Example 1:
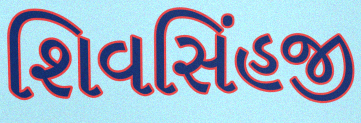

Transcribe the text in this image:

શિવસિંહજી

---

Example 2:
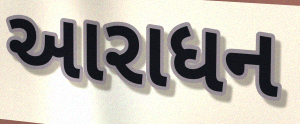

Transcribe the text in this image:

આરાધન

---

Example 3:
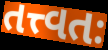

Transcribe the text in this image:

તત્ત્વતઃ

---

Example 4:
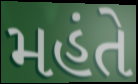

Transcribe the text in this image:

મહંતે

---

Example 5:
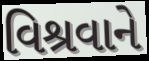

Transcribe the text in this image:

વિશ્રવાને